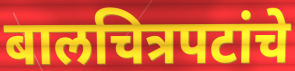
बालचित्रपटांचे